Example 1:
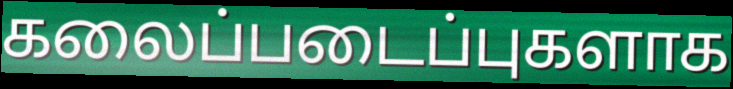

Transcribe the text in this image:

கலைப்படைப்புகளாக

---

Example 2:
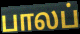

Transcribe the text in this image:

பாலப்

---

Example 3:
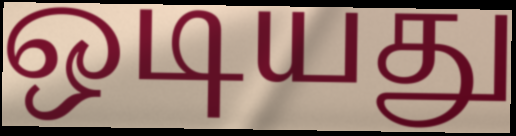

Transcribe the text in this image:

ஒடியது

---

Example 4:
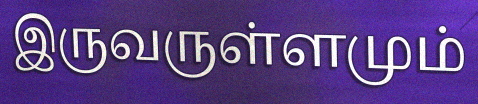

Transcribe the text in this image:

இருவருள்ளமும்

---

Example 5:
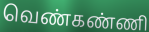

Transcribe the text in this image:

வெண்கண்ணி